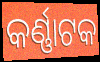
କର୍ଣ୍ଣାଟକ